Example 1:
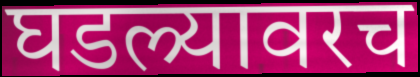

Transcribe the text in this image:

घडल्यावरच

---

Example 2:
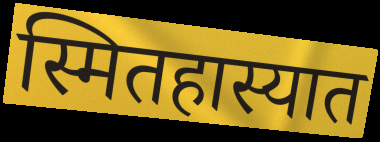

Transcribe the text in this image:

स्मितहास्यात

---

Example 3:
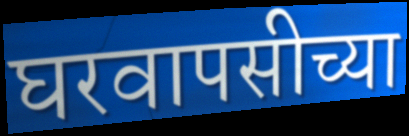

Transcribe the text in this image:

घरवापसीच्या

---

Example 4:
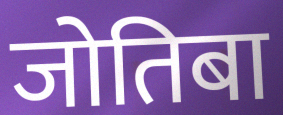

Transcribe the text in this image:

जोतिबा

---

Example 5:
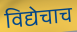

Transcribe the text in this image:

विद्येचाच